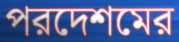
পরদেশমের